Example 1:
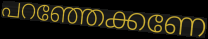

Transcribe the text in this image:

പറഞ്ഞേക്കണേ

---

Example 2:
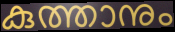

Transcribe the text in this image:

കുത്താനും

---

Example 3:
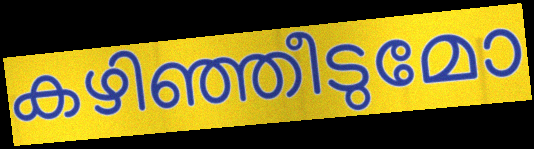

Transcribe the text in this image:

കഴിഞ്ഞീടുമോ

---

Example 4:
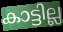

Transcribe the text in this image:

കാട്ടില്ല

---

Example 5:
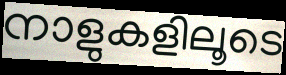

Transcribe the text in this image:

നാളുകളിലൂടെ